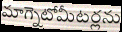
మాగ్నెటోమీటర్లను